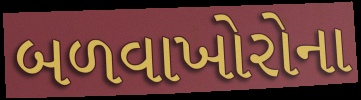
બળવાખોરોના